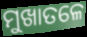
ମୁଖାତଳେ